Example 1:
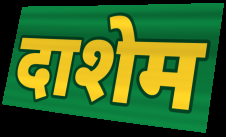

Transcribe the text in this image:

दाशेम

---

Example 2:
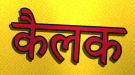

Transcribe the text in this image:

कैलक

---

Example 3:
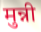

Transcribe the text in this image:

मुन्नी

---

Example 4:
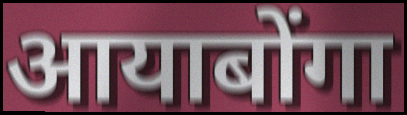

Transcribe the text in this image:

आयाबोंगा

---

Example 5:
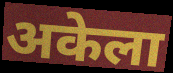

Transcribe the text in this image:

अकेला